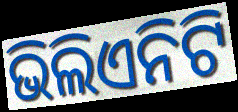
ଭିଲିଏନିଟି